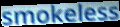
smokeless